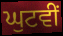
ਘੁਟਵੀਂ